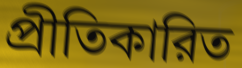
প্রীতিকারিত